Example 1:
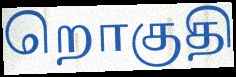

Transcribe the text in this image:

றொகுதி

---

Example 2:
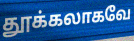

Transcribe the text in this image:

தூக்கலாகவே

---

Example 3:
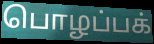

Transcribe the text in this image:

பொழப்பக்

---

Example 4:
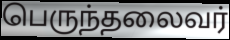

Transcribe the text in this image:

பெருந்தலைவர்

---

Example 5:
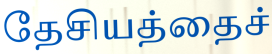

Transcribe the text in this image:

தேசியத்தைச்